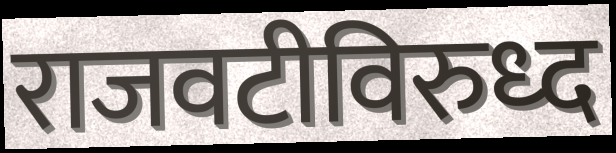
राजवटीविरुध्द